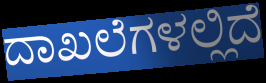
ದಾಖಲೆಗಳಲ್ಲಿದೆ